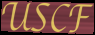
USCF